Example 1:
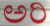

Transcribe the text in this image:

ಅರಿ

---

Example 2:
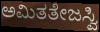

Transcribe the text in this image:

ಅಮಿತತೇಜಸ್ವಿ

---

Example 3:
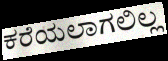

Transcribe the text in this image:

ಕರೆಯಲಾಗಲಿಲ್ಲ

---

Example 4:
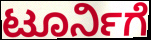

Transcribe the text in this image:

ಟೂರ್ನಿಗೆ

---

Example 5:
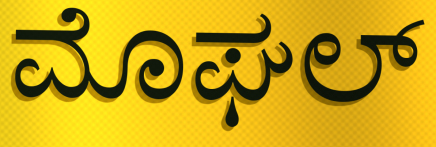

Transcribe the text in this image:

ಮೊಘಲ್